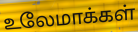
உலேமாக்கள்